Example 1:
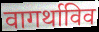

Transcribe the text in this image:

वागर्थाविव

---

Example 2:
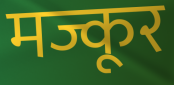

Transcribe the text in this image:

मज्कूर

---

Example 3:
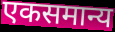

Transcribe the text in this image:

एकसमान्य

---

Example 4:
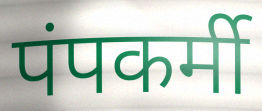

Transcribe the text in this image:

पंपकर्मी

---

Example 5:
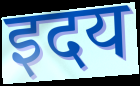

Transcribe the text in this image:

इदय